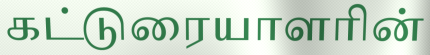
கட்டுரையாளரின்